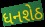
ધનશેઠ